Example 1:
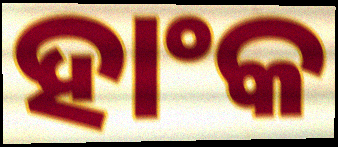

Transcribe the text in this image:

ହାଂକ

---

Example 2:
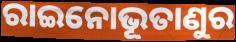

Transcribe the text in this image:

ରାଇନୋଭୂତାଣୁର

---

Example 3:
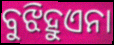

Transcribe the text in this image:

ବୁଝିହୁଏନା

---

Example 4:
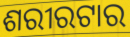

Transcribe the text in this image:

ଶରୀରଟାର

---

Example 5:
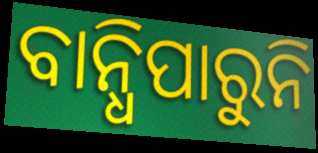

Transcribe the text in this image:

ବାନ୍ଧିପାରୁନି